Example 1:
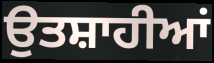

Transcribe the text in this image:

ਉਤਸ਼ਾਹੀਆਂ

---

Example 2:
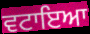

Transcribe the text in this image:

ਵਟਾਇਆ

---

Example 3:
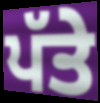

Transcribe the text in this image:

ਪੱਤੇ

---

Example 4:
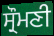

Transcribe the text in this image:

ਸ੍ਰੌਮਣੀ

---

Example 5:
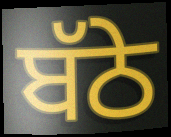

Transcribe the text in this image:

ਬੱਠੇ